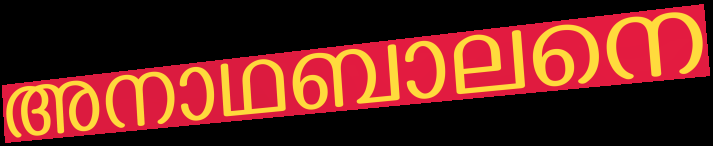
അനാഥബാലനെ